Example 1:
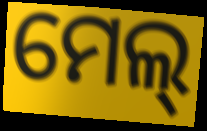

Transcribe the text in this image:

ମେଲ୍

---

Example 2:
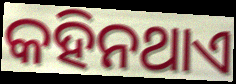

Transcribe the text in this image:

କହିନଥାଏ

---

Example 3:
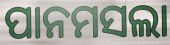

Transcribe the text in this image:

ପାନମସଲା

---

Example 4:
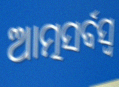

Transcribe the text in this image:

ଆତ୍ମସର୍ବସ୍ଵ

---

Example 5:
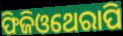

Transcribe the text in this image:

ଫିଜିଓଥେରାପି